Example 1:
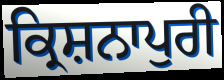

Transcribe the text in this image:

ਕ੍ਰਿਸ਼ਨਾਪੁਰੀ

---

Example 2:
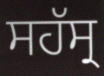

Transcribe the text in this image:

ਸਹੱਸ੍ਰ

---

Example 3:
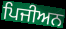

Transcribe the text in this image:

ਪਿਜੀਅਨ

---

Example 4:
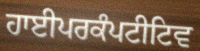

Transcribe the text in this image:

ਹਾਈਪਰਕੰਪਟੀਟਿਵ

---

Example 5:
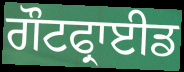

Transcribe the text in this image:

ਗੌਟਫ੍ਰਾਈਡ